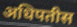
अधिपतीस